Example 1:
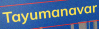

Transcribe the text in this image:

Tayumanavar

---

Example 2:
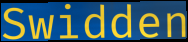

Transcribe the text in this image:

Swidden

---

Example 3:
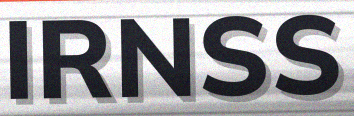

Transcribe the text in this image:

IRNSS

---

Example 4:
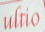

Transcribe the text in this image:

ultio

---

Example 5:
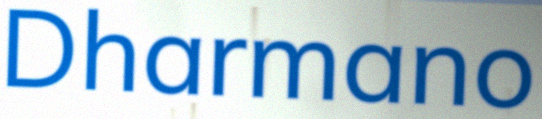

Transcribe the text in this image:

Dharmano